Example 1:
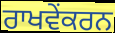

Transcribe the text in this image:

ਰਾਖਵੇਂਕਰਨ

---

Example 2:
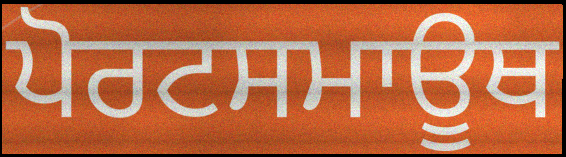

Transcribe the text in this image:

ਪੋਰਟਸਮਾਊਥ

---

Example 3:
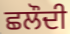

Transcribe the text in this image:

ਛਲੌਦੀ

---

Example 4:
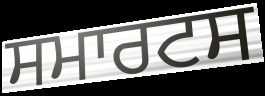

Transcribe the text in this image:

ਸਮਾਰਟਸ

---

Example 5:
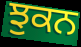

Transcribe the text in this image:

ਝੁਕਨ